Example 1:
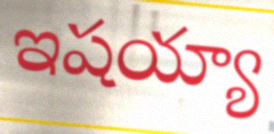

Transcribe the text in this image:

ఇషయ్యా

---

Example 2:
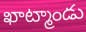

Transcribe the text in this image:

ఖాట్మాండు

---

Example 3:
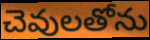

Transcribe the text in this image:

చెవులతోను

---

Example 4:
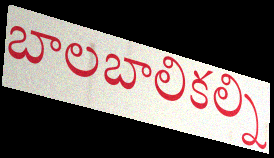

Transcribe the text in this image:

బాలబాలికల్ని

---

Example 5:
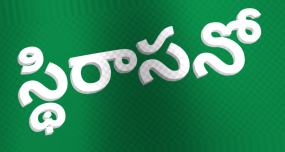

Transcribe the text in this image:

స్థిరాసనో